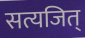
सत्यजित्